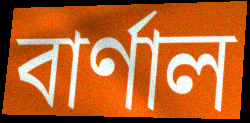
বাৰ্ণাল